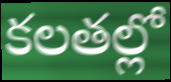
కలతల్లో